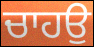
ਚਾਹਉ